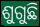
ଶୁଗୁଛି